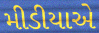
મીડીયાએ